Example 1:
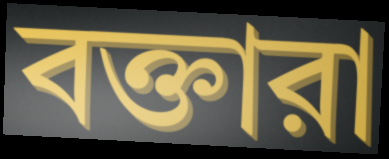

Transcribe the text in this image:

বক্তারা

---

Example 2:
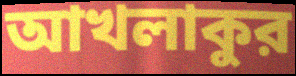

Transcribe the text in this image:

আখলাকুর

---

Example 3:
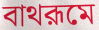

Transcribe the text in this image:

বাথরূমে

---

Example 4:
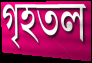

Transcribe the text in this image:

গৃহতল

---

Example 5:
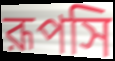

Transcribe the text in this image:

রূপসি